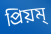
প্রিয়ম্